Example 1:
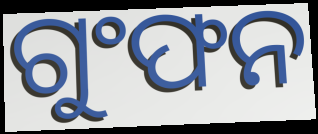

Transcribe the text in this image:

ଗୁଂଫନ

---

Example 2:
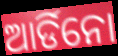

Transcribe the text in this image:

ଆର୍ଡିନୋ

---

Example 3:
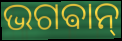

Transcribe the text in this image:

ଭଗଵାନ୍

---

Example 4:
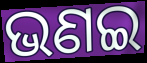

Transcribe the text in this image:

ଭଣଇ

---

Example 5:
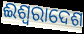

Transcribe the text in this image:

ଈଶ୍ୱରାଦେଶ